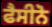
ਫੈਸੀਨੋ